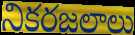
నికరజలాలు